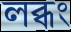
লব্ধং